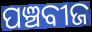
ପଞ୍ଚବୀଜ